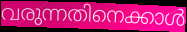
വരുന്നതിനെക്കാൾ